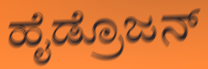
ಹೈಡ್ರೊಜನ್